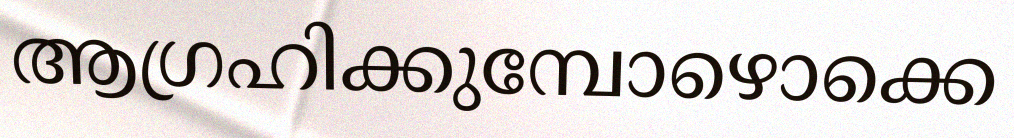
ആഗ്രഹിക്കുമ്പോഴൊക്കെ